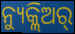
ନ୍ୟୁକ୍ଲିଅର୍